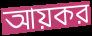
আয়কর